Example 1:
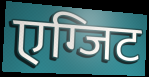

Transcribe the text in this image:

एग्जिट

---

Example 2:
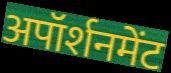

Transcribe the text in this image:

अपॉर्शनमेंट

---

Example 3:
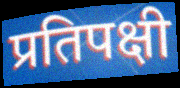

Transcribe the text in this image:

प्रतिपक्षी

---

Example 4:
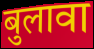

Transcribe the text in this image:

बुलावा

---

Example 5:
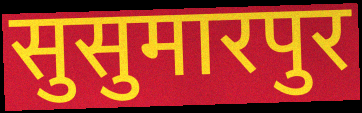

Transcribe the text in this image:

सुसुमारपुर